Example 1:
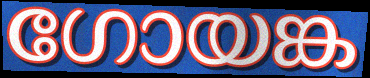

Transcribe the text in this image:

ഗോയങ്ക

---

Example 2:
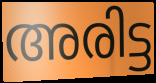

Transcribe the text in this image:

അരിട്ട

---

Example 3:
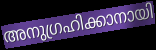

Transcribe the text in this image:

അനുഗ്രഹിക്കാനായി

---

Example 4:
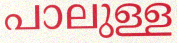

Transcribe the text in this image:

പാലുള്ള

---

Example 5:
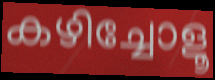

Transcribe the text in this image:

കഴിച്ചോളൂ